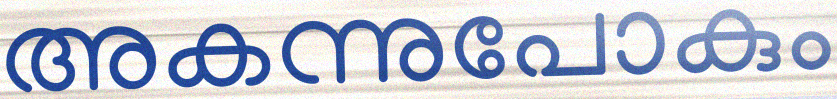
അകന്നുപോകും